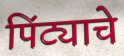
पिंट्याचे